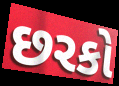
છરકો